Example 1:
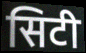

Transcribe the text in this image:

सिटी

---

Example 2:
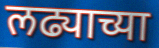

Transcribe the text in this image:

लढ्याच्या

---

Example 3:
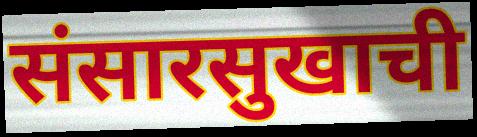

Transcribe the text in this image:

संसारसुखाची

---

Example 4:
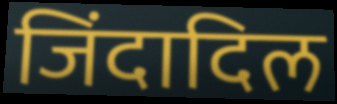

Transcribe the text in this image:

जिंदादिल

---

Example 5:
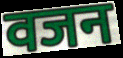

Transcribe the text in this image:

वजन